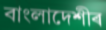
বাংলাদেশীৰ